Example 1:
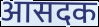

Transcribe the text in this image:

आसदक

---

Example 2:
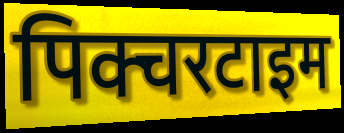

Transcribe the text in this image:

पिक्चरटाइम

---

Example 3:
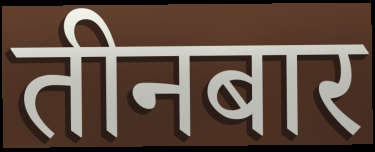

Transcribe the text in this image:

तीनबार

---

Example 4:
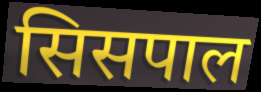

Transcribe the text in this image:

सिसपाल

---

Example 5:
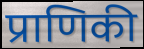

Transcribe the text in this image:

प्राणिकी